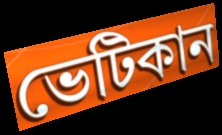
ভেটিকান